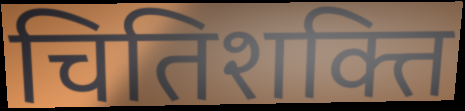
चितिशक्ति